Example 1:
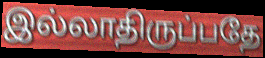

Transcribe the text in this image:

இல்லாதிருப்பதே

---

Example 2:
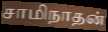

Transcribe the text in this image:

சாமிநாதன்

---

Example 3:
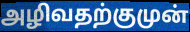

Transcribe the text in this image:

அழிவதற்குமுன்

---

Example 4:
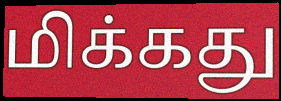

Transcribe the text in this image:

மிக்கது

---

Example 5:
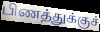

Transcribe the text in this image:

பிணத்துக்குச்